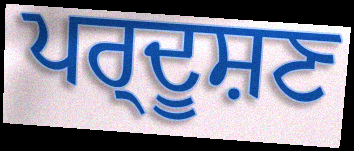
ਪਰ੍ਦੂਸ਼ਣ